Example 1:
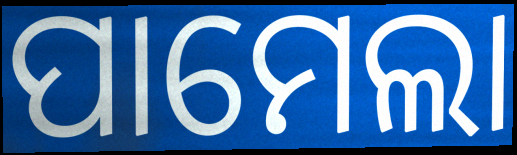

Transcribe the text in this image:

ପାମେଲା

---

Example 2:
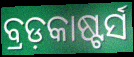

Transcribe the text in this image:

ବ୍ରଡ଼କାଷ୍ଟର୍ସ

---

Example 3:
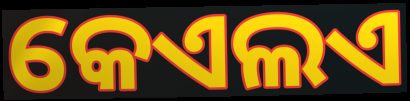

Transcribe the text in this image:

କେଏଲଏ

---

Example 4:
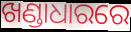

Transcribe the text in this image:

ଖଣ୍ଡାଧାରରେ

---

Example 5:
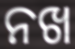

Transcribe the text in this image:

ନଖ